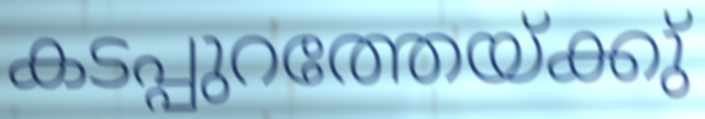
കടപ്പുറത്തേയ്ക്കു്